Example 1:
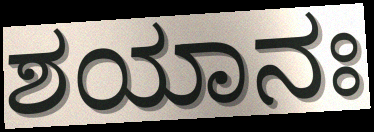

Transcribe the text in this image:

ಶಯಾನಃ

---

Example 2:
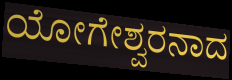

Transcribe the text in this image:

ಯೋಗೇಶ್ವರನಾದ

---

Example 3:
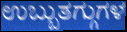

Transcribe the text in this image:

ಉಬ್ಬುತಗ್ಗುಗಳ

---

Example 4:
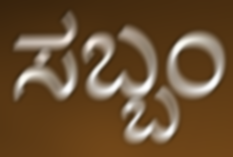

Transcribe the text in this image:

ಸಬ್ಬಂ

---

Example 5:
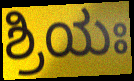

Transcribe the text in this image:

ಶ್ರಿಯಃ